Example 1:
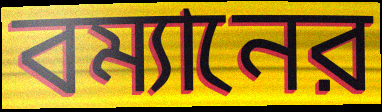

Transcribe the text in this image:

বম্যানের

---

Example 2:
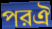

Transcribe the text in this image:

পরঐ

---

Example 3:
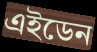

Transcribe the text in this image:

এইডেন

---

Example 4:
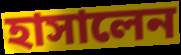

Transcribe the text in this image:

হাসালেন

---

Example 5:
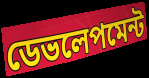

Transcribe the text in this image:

ডেভলেপমেন্ট